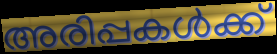
അരിപ്പകൾക്ക്